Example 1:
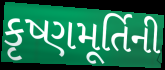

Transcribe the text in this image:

કૃષ્ણમૂર્તિની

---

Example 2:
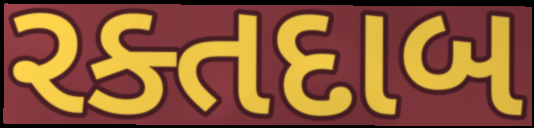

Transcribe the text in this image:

રક્તદાબ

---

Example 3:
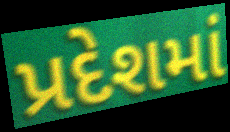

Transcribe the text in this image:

પ્રદેશમાં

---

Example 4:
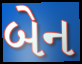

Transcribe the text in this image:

બેન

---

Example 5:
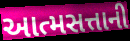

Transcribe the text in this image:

આત્મસત્તાની